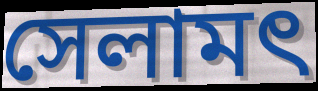
সেলামৎ